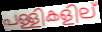
പള്ളികളില്